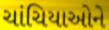
ચાંચિયાઓને